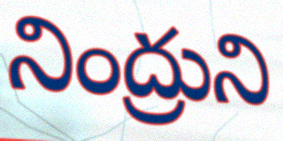
నింద్రుని